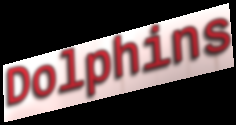
Dolphins